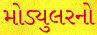
મોડ્યુલરનો